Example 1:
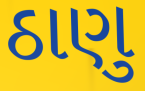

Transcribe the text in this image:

ઠાણુ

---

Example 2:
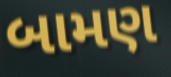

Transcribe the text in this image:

બામણ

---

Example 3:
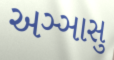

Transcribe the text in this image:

અઞ્ઞાસુ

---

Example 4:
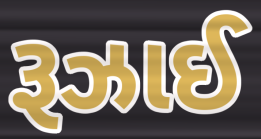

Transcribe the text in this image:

રૂઝાઈ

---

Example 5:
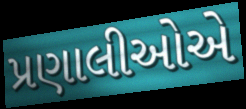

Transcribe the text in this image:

પ્રણાલીઓએ